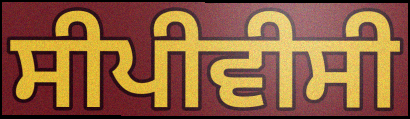
ਸੀਪੀਵੀਸੀ